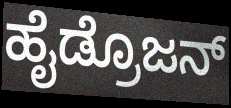
ಹೈಡ್ರೊಜನ್